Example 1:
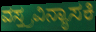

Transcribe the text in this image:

ವಸ್ತ್ರವಿನ್ಯಾಸಕಿ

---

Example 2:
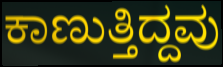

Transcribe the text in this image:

ಕಾಣುತ್ತಿದ್ದವು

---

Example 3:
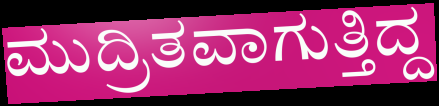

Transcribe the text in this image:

ಮುದ್ರಿತವಾಗುತ್ತಿದ್ದ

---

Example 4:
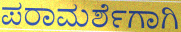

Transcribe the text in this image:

ಪರಾಮರ್ಶೆಗಾಗಿ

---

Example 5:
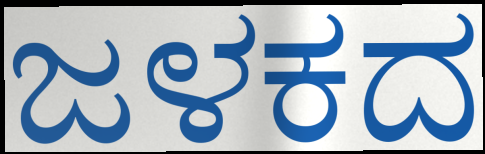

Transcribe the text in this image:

ಜಳಕದ